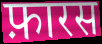
फ़ारस